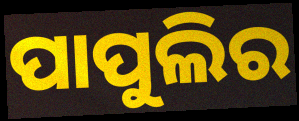
ପାପୁଲିର